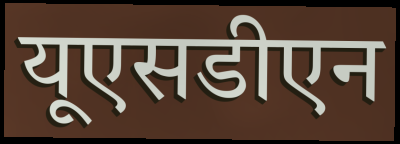
यूएसडीएन